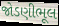
જોડણીભૂલ